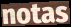
notas